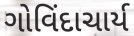
ગોવિંદાચાર્ય